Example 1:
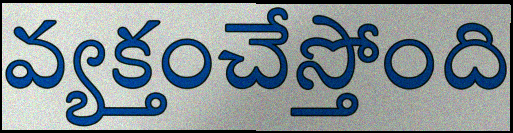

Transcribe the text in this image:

వ్యక్తంచేస్తోంది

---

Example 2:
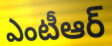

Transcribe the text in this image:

ఎంటీఆర్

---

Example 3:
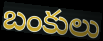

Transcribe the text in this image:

బంకులు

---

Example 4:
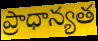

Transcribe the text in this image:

ప్రాధాన్యత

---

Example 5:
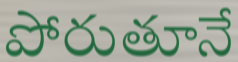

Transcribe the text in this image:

పోరుతూనే